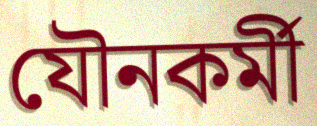
যৌনকর্মী